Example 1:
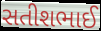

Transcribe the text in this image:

સતીશભાઈ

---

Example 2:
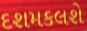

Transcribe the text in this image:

દશમકલશે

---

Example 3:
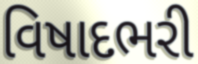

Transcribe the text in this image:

વિષાદભરી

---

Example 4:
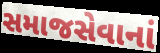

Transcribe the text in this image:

સમાજસેવાનાં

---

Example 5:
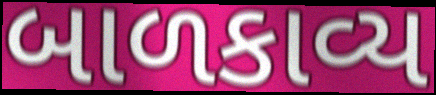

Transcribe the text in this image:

બાળકાવ્ય